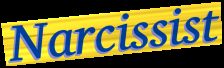
Narcissist